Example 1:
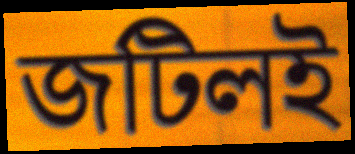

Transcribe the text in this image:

জটিলই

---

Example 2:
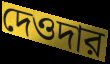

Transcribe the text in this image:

দেওদার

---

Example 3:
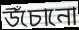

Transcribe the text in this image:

উঁচোনো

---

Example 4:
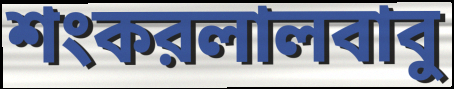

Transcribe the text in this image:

শংকরলালবাবু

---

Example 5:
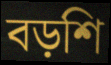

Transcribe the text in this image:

বড়শি